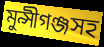
মুন্সীগঞ্জসহ